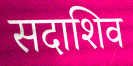
सदाशिव